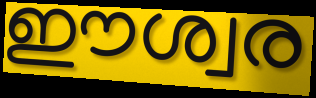
ഈശ്വര